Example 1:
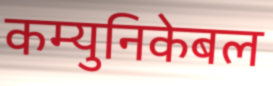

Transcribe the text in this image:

कम्युनिकेबल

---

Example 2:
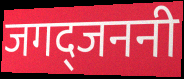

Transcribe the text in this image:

जगद्जननी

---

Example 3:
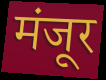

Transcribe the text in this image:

मंजूर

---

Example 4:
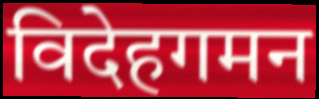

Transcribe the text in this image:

विदेहगमन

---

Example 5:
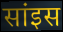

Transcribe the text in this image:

सांइस